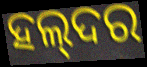
ହଲ୍‌ଦର